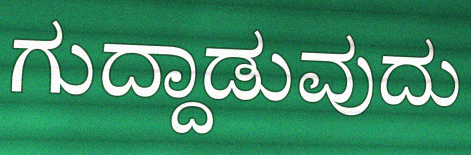
ಗುದ್ದಾಡುವುದು